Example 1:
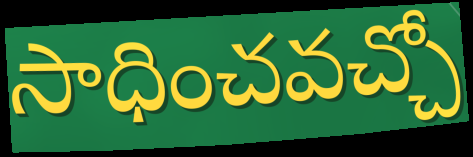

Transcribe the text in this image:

సాధించవచ్చో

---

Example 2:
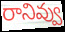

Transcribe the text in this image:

రానివ్వు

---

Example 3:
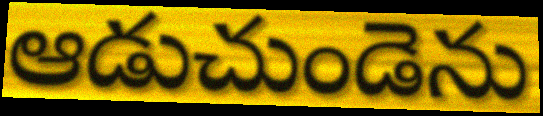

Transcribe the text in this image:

ఆడుచుండెను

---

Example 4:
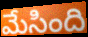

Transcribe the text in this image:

మేసింది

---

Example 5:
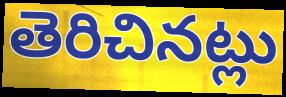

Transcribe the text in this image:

తెరిచినట్లు